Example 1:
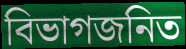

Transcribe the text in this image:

বিভাগজনিত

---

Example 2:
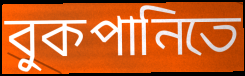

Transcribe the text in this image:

বুকপানিতে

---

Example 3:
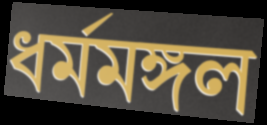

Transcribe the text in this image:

ধর্মমঙ্গল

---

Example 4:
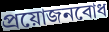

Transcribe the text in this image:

প্রয়োজনবোধ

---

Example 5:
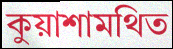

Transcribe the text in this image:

কুয়াশামথিত